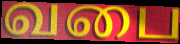
வபை